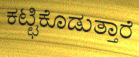
ಕಟ್ಟಿಕೊಡುತ್ತಾರೆ